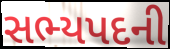
સભ્યપદની